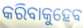
କରିବାକୁହେବ